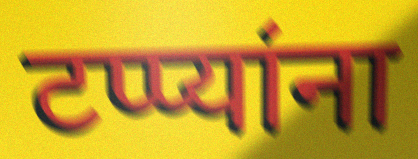
टप्प्यांना